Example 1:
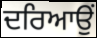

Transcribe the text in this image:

ਦਰਿਆਉਂ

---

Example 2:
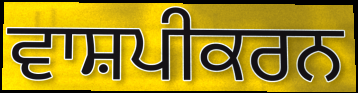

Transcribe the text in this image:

ਵਾਸ਼ਪੀਕਰਨ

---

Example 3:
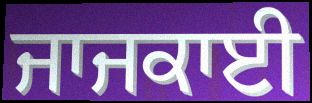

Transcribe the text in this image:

ਜਾਜਕਾਈ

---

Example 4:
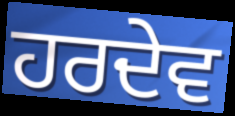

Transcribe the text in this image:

ਹਰਦੇਵ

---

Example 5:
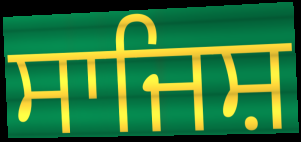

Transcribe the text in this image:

ਸਾਜਿਸ਼